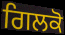
ਗਿਲਕੋ